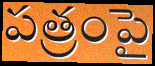
పత్రంపై